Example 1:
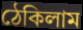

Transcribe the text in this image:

ঠেকিলাম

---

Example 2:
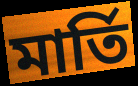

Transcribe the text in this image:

মার্তি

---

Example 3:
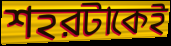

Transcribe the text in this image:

শহরটাকেই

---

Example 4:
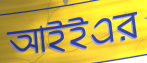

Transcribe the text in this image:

আইইএর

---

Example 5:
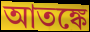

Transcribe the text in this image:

আতঙ্কে